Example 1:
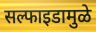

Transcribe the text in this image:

सल्फाइडामुळे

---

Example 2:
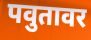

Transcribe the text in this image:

पवुतावर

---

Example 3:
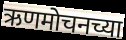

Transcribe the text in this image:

ऋणमोचनच्या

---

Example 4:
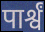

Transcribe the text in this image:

पार्श्वं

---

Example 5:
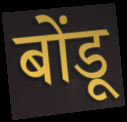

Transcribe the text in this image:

बोंडू